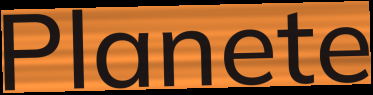
Planete